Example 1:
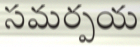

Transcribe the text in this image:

సమర్పయ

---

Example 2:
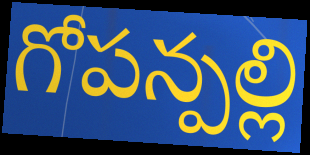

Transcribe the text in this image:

గోపన్పల్లి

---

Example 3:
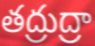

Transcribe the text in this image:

తద్రుద్రా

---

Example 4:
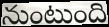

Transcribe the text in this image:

నుంటుంది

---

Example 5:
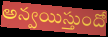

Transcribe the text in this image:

అన్వయిస్తుందో